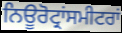
ਨਿਊਰੋਟ੍ਰਾਂਸਮੀਟਰਾਂ